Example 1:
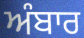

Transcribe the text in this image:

ਅੰਬਾਰ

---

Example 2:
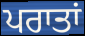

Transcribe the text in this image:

ਪਰਾਤਾਂ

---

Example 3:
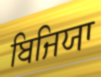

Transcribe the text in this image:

ਬਿਜਿਯਾ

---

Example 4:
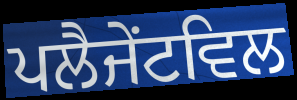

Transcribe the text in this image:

ਪਲੈਜੇਂਟਵਿਲ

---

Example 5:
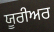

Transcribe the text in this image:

ਯੂਰੀਅਰ